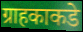
ग्राहकाकडे